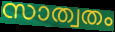
സാത്വതം